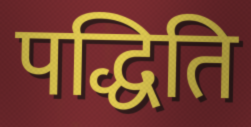
पद्धिति